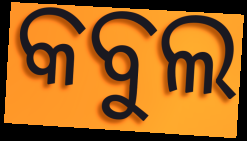
କବୁଲ